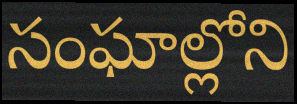
సంఘాల్లోని